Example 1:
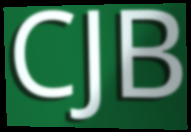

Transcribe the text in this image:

CJB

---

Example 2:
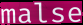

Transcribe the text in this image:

malse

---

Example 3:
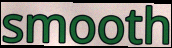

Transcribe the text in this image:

smooth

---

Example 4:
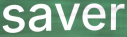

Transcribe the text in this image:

saver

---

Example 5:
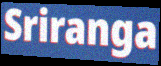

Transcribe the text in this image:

Sriranga